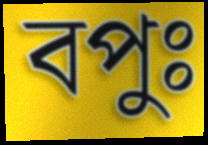
বপুঃ